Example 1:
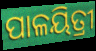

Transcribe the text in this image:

ପାଳୟିତ୍ରୀ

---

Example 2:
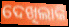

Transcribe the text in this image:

ଦେଖିଲାକି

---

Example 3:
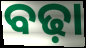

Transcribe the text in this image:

ବଢ଼ା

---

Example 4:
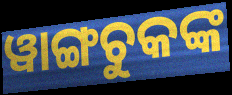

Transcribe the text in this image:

ୱାଙ୍ଗଚୁକଙ୍କ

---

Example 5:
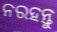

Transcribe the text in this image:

ନରହନ୍ତୁ